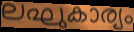
ലഘുകാര്യം